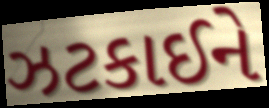
ઝટકાઈને